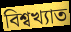
বিশ্বখ্যাত